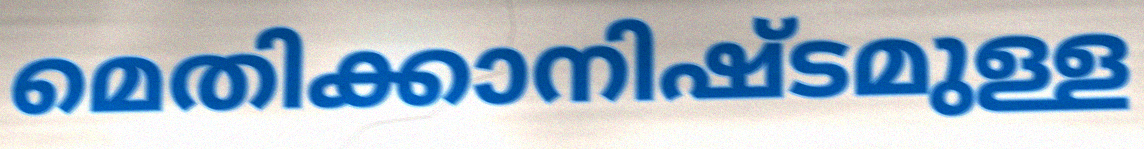
മെതിക്കാനിഷ്ടമുള്ള